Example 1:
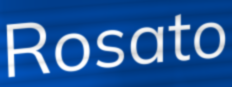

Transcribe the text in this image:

Rosato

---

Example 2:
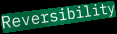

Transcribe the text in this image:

Reversibility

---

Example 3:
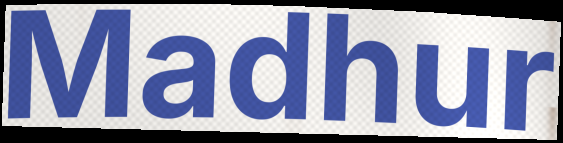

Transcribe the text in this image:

Madhur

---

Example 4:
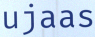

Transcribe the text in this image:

ujaas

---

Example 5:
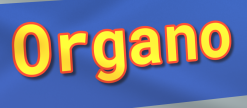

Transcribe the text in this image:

Organo